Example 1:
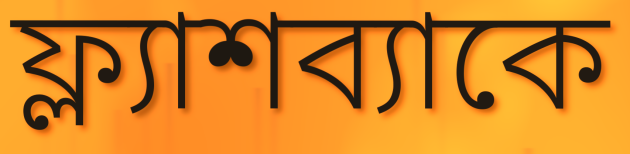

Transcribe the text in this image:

ফ্ল্যাশব্যাকে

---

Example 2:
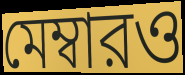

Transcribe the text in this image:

মেম্বারও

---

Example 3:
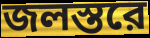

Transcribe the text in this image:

জলস্তরে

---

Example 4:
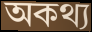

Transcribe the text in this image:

অকথ্য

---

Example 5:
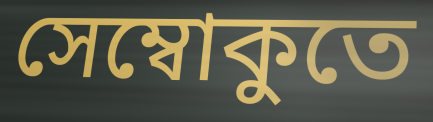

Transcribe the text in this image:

সেম্বোকুতে